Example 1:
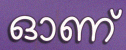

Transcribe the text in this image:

ഓണ്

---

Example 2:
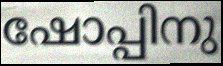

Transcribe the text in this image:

ഷോപ്പിനു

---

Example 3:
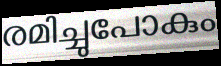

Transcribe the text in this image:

രമിച്ചുപോകും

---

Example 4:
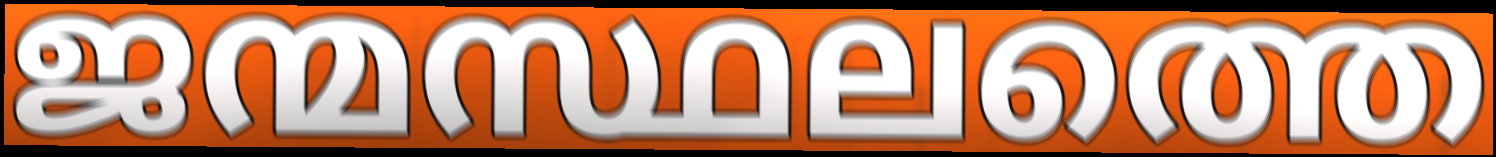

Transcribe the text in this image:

ജന്മസ്ഥലത്തെ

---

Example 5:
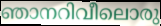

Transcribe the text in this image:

ഞാനറിവീലൊരു